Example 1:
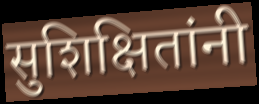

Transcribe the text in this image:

सुशिक्षितांनी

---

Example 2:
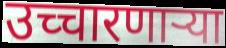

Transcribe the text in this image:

उच्चारणाऱ्या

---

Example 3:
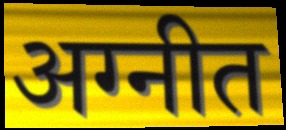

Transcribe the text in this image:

अग्नीत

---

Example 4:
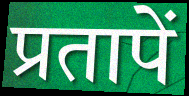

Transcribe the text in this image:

प्रतापें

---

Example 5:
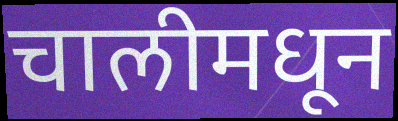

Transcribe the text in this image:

चालीमधून